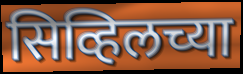
सिव्हिलच्या